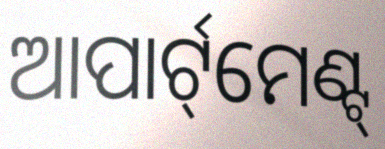
ଆପାର୍ଟ୍‌ମେଣ୍ଟ୍